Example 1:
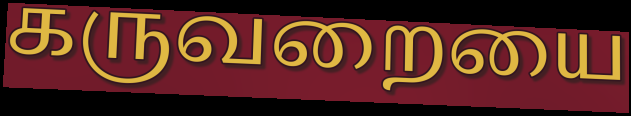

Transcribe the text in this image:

கருவறையை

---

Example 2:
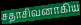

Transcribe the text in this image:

சதாசிவனாகிய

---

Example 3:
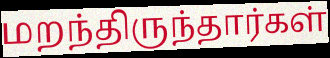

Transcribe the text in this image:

மறந்திருந்தார்கள்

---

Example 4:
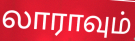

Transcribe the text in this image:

லாராவும்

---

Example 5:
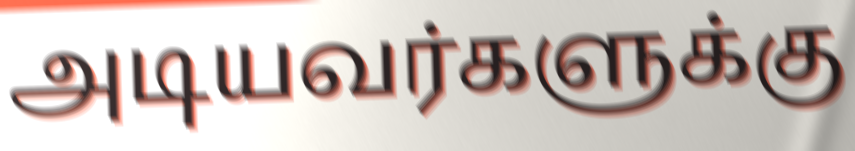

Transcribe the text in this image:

அடியவர்களுக்கு